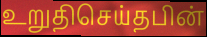
உறுதிசெய்தபின்